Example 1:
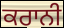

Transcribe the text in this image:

ਕਰਾਨੀ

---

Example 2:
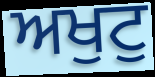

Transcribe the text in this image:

ਅਖੁਟੁ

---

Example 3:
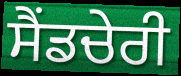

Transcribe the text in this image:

ਸੈਂਡਚੇਰੀ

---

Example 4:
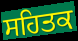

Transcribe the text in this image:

ਸਹਿਤਕ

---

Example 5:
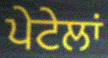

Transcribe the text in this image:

ਪੇਟੇਲਾਂ